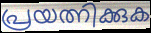
പ്രയത്നിക്കുക